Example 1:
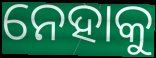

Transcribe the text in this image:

ନେହାକୁ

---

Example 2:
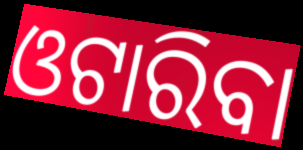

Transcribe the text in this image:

ଓଟାରିବା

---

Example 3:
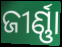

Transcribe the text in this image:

ଜୀର୍ଣ୍ଣା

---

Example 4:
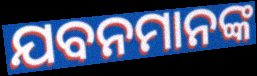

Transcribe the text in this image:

ଯବନମାନଙ୍କ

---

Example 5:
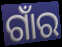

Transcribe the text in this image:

ଗାଁର